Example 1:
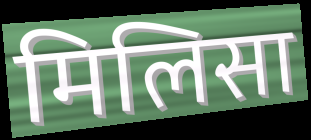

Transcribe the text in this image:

मिलिसा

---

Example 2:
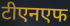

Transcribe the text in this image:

टीएनएफ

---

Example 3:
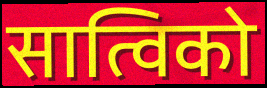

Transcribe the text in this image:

सात्विको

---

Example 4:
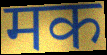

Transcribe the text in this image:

मक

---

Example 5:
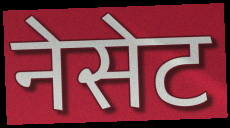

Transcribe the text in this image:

नेसेट